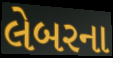
લેબરના